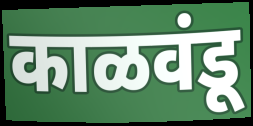
काळवंडू